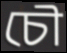
চৌ